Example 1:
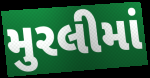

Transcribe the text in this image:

મુરલીમાં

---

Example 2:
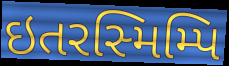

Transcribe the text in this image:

ઇતરસ્મિમ્પિ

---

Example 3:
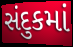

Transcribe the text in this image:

સંદુકમાં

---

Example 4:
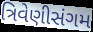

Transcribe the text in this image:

ત્રિવેણીસંગમ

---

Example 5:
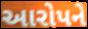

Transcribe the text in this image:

આરોપને